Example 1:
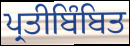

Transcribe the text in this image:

ਪ੍ਰਤੀਬਿੰਬਿਤ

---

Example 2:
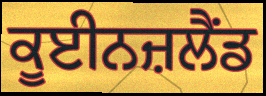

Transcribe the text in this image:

ਕੂਈਨਜ਼ਲੈਂਡ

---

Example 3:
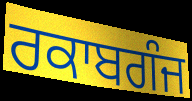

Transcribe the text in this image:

ਰਕਾਬਗੰਜ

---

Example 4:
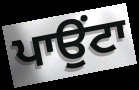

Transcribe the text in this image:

ਪਾਉਂਟਾ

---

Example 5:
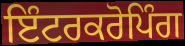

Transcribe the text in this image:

ਇੰਟਰਕਰੋਪਿੰਗ